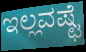
ಇಲ್ಲವಷ್ಟೆ